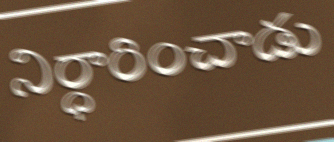
నిర్ధారించాడు